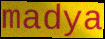
madya